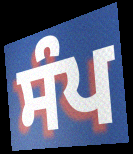
ਸੰਪ